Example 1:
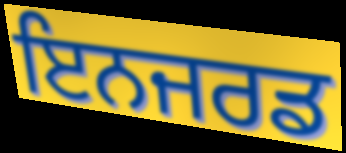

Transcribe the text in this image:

ਇਨਜਰਡ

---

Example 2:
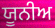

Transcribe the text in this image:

ਯੂਨੀਅ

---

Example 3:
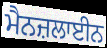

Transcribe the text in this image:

ਮੈਨਜ਼ਲਾਈਨ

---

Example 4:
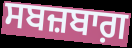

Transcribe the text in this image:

ਸਬਜ਼ਬਾਗ਼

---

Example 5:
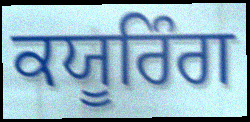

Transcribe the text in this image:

ਕਯੂਰਿੰਗ